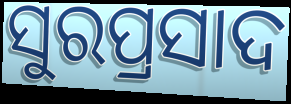
ସୁରପ୍ରସାଦ